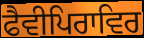
ਫੈਵੀਪਿਰਾਵਿਰ